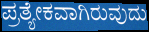
ಪ್ರತ್ಯೇಕವಾಗಿರುವುದು